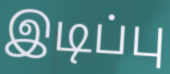
இடிப்பு